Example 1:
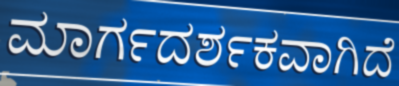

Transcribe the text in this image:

ಮಾರ್ಗದರ್ಶಕವಾಗಿದೆ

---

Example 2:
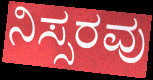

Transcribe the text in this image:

ನಿಸ್ಸರವು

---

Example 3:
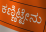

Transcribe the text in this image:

ಕಣ್ಣಿಟ್ಟೇನು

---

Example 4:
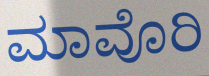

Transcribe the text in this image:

ಮಾವೊರಿ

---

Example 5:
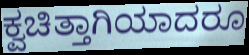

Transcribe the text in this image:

ಕ್ವಚಿತ್ತಾಗಿಯಾದರೂ